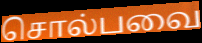
சொல்பவை